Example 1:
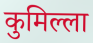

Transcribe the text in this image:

कुमिल्ला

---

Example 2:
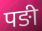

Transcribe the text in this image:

पङी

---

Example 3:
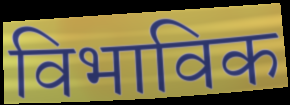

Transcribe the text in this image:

विभाविक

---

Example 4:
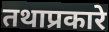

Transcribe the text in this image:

तथाप्रकारे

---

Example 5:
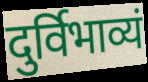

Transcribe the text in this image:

दुर्विभाव्यं